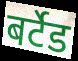
बर्टेड